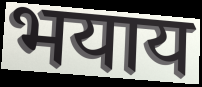
भयाय